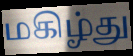
மகிழ்து